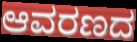
ಆವರಣದ